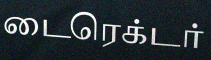
டைரெக்டர்